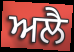
ਅਲੈ